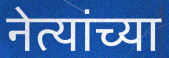
नेत्यांच्या